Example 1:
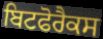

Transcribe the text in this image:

ਬਿਟਫੋਰੈਕਸ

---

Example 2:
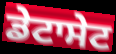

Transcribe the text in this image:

ਡੇਟਾਸੇਟ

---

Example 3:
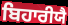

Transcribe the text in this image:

ਬਿਹਾਰੀਯੈ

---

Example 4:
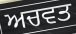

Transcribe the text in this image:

ਅਚਵਤ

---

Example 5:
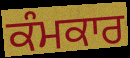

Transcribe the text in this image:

ਕੰਮਕਾਰ